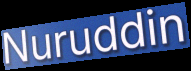
Nuruddin